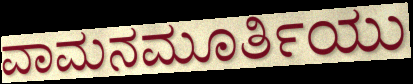
ವಾಮನಮೂರ್ತಿಯು